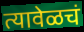
त्यावेळचं